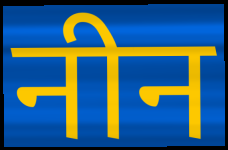
नीन